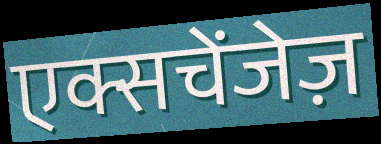
एक्सचेंजेज़